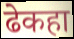
ढेकहा